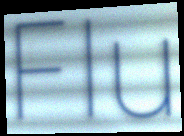
Flu